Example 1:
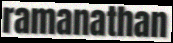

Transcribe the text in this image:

ramanathan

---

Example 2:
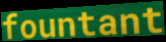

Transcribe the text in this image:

fountant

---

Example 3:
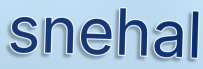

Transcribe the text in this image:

snehal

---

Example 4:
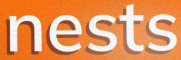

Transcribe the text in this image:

nests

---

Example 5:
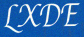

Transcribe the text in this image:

LXDE